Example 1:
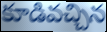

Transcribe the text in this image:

కూడివచ్చిన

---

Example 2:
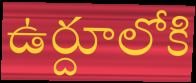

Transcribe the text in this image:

ఉర్దూలోకి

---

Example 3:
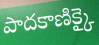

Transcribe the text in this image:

పాదకాణిక్కై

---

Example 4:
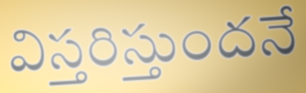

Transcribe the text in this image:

విస్తరిస్తుందనే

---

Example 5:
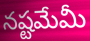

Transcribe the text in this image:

నష్టమేమీ